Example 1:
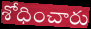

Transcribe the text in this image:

శోధించారు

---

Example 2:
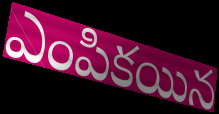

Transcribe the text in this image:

ఎంపికయిన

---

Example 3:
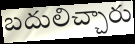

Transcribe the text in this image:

బదులిచ్చారు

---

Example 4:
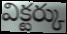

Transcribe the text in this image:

విక్టర్కు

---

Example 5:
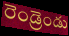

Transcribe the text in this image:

రెండ్రెండు